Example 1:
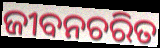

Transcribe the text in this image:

ଜୀବନଚରିତ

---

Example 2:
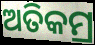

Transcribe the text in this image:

ଅତିକମ୍ର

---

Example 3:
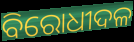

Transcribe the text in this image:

ବିରୋଧୀଦଳ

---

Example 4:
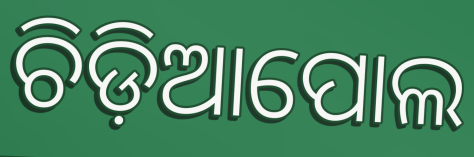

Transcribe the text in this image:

ଚିଡ଼ିଆପୋଲ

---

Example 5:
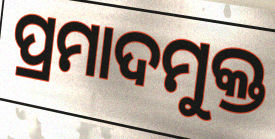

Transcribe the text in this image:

ପ୍ରମାଦମୁକ୍ତ